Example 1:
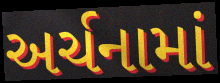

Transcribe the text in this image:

અર્ચનામાં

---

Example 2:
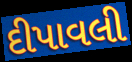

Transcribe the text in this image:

દીપાવલી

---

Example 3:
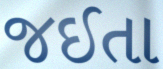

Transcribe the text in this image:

જઈતા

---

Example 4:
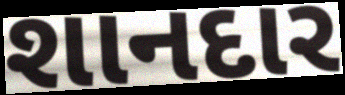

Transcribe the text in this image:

શાનદાર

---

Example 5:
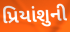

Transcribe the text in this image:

પ્રિયાંશુની